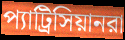
প্যাট্রিসিয়ানরা